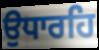
ਉਧਾਰਹਿ